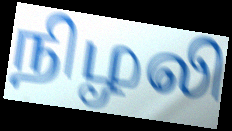
நிழலி